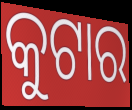
କୁଟାର